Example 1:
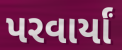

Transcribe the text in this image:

પરવાર્યાં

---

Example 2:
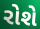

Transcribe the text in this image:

રોશે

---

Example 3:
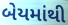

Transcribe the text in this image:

બેયમાંથી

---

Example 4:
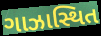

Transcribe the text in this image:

ગાઝાસ્થિત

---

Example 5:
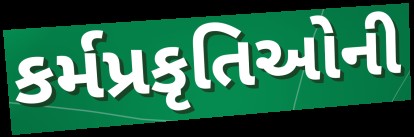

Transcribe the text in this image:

કર્મપ્રકૃતિઓની